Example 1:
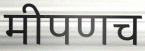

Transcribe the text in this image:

मीपणच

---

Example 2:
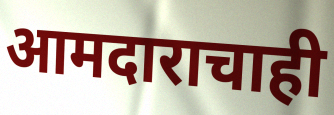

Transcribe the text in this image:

आमदाराचाही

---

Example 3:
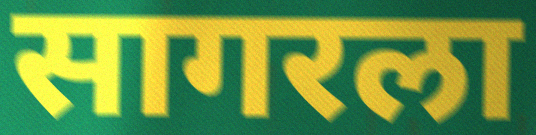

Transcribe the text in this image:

सागरला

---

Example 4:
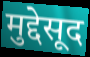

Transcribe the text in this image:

मुद्देसूद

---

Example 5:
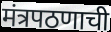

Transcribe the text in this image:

मंत्रपठणाची